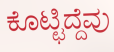
ಕೊಟ್ಟಿದ್ದೆವು